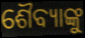
ଶୈବ୍ୟାଙ୍କୁ